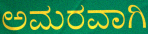
ಅಮರವಾಗಿ